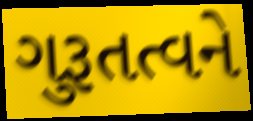
ગુરૂતત્વને